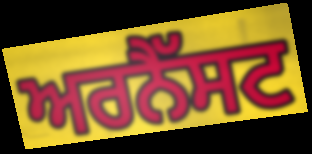
ਅਰਨੈੱਸਟ